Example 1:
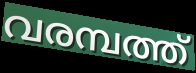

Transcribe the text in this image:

വരമ്പത്ത്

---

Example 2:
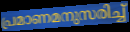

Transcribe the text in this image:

പ്രമാണമനുസരിച്ച്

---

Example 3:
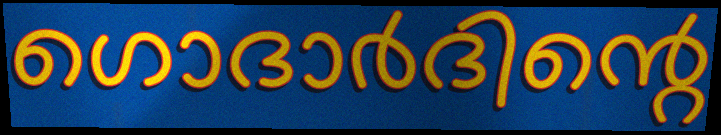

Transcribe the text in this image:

ഗൊദാർദിന്റെ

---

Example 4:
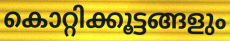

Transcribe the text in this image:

കൊറ്റിക്കൂട്ടങ്ങളും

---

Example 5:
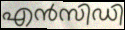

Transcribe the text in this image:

എൻസിഡി